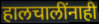
हालचालींनाही